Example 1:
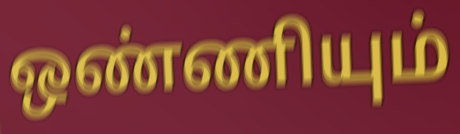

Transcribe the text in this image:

ஒண்ணியும்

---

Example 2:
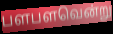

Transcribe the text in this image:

பளபளவென்று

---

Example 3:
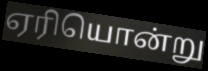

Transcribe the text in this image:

ஏரியொன்று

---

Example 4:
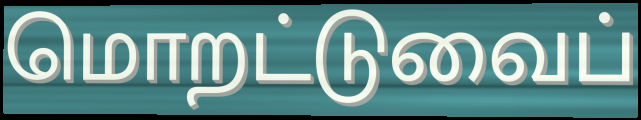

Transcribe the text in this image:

மொறட்டுவைப்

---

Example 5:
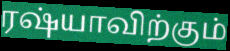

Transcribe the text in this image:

ரஷ்யாவிற்கும்